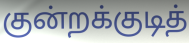
குன்றக்குடித்